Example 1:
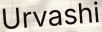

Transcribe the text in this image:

Urvashi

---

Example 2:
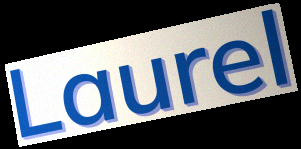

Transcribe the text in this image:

Laurel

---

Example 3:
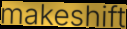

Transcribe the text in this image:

makeshift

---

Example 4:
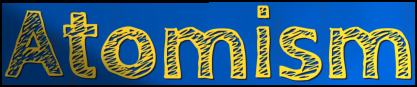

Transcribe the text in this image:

Atomism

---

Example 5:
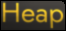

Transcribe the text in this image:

Heap